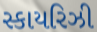
સ્કાયરિઝી